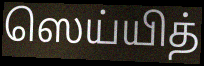
ஸெய்யித்